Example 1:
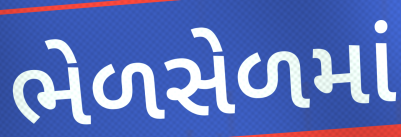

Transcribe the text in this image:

ભેળસેળમાં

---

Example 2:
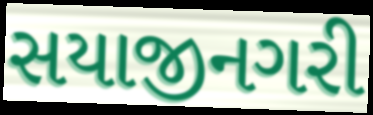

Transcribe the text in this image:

સયાજીનગરી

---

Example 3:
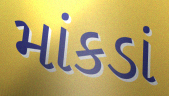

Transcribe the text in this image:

માંકડાં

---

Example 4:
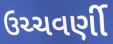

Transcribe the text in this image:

ઉચ્ચવર્ણી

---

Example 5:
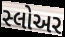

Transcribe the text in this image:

સ્લોઅર